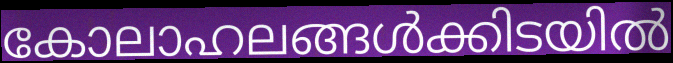
കോലാഹലങ്ങൾക്കിടയിൽ